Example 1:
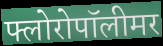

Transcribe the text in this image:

फ्लोरोपॉलीमर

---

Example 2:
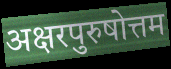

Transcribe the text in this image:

अक्षरपुरुषोत्तम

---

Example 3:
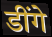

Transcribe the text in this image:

डींगे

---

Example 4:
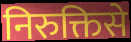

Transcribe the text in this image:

निरुक्तिसे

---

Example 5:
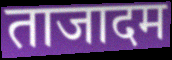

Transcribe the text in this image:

ताजादम